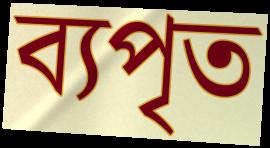
ব্যপৃত